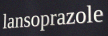
lansoprazole